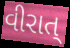
વીરાત્